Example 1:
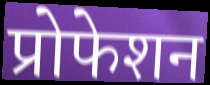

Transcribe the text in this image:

प्रोफेशन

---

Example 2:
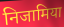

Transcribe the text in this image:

निजामिया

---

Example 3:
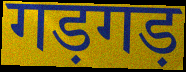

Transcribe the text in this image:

गड़गड़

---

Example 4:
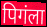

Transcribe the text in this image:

पिगंला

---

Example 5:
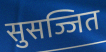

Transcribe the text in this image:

सुसज्जित